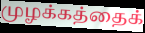
முழக்கத்தைக்